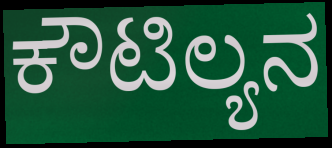
ಕೌಟಿಲ್ಯನ